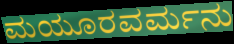
ಮಯೂರವರ್ಮನು